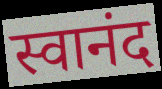
स्वानंद